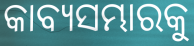
କାବ୍ୟସମ୍ଭାରକୁ